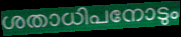
ശതാധിപനോടും